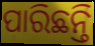
ପାରିଛନ୍ତି